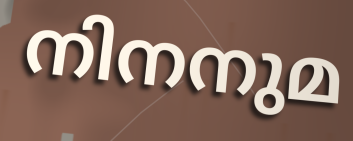
നിനനുമ